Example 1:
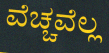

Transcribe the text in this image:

ವೆಚ್ಚವೆಲ್ಲ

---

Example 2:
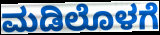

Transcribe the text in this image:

ಮಡಿಲೊಳಗೆ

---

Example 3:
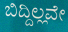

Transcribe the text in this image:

ಬಿದ್ದಿಲ್ಲವೇ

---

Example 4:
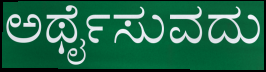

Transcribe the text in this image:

ಅರ್ಥೈಸುವದು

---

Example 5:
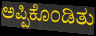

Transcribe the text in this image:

ಅಪ್ಪಿಕೊಂಡಿತು